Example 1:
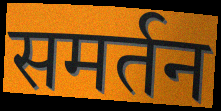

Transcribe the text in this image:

समर्तन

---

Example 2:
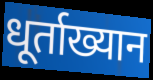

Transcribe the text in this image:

धूर्ताख्यान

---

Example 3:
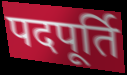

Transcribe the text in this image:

पदपूर्ति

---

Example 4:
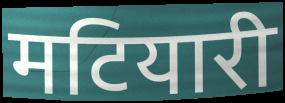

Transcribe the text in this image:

मटियारी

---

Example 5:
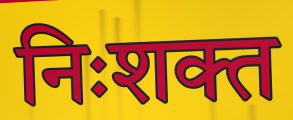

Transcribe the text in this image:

निःशक्त